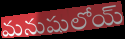
మనుషులోయ్